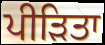
ਪੀੜਿਤਾ